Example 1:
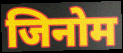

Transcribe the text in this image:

जिनोम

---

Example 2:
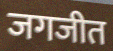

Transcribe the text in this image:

जगजीत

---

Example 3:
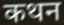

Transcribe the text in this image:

कथन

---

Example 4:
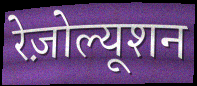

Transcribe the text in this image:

रेज़ोल्यूशन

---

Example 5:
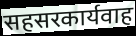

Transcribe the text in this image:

सहसरकार्यवाह